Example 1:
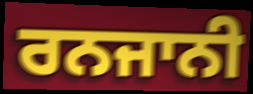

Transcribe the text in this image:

ਰਨਜਾਨੀ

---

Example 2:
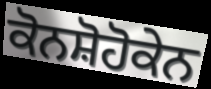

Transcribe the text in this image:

ਕੋਨਸ਼ੋਹੋਕੇਨ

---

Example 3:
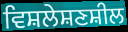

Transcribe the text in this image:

ਵਿਸ਼ਲੇਸ਼ਣਸ਼ੀਲ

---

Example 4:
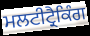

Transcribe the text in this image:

ਮਲਟੀਟ੍ਰੈਕਿੰਗ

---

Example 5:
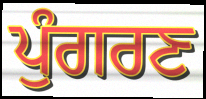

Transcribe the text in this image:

ਪੁੰਗਰਣ